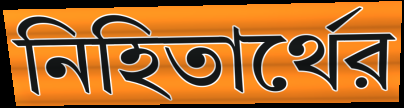
নিহিতার্থের